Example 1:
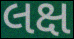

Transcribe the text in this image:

લક્ષ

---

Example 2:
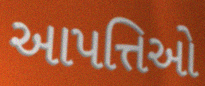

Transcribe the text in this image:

આપત્તિઓ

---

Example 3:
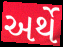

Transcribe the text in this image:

અર્થે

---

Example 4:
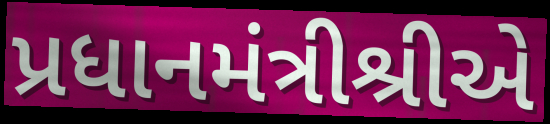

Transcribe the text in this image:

પ્રધાનમંત્રીશ્રીએ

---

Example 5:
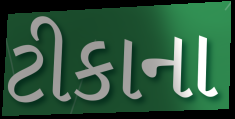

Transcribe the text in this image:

ટીકાના